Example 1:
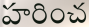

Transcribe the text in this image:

హరించ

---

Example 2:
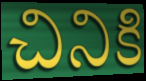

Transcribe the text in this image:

చినికి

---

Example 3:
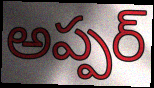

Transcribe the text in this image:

అప్పర్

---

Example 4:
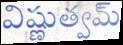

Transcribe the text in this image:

విష్ణుత్వమ్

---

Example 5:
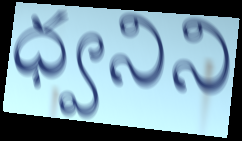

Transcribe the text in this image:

ధ్వనిని